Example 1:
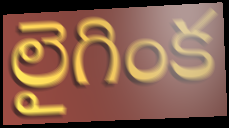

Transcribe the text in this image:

లైగింక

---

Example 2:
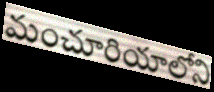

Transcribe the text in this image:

మంచూరియాలోని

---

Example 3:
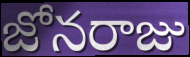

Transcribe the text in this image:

జోనరాజు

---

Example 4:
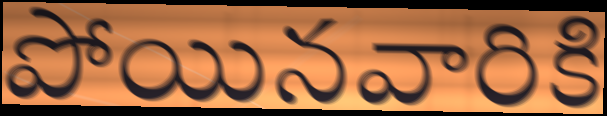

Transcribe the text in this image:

పోయినవారికి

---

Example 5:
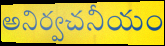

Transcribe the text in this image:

అనిర్వచనీయం